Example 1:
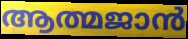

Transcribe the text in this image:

ആത്മജാൻ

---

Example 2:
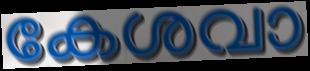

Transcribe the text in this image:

കേശവാ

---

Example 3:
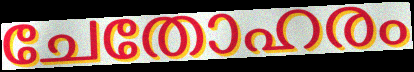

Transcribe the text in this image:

ചേതോഹരം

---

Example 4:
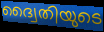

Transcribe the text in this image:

ദ്വൈതിയുടെ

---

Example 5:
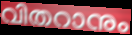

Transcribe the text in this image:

വിതറാനും